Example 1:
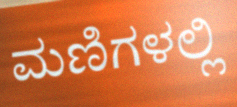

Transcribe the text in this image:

ಮಣಿಗಳಲ್ಲಿ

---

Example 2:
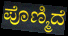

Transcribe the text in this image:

ಪೊಣ್ಮಿದೆ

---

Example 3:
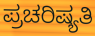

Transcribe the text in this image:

ಪ್ರಚರಿಷ್ಯತಿ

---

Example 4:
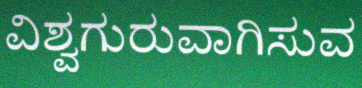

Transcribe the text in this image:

ವಿಶ್ವಗುರುವಾಗಿಸುವ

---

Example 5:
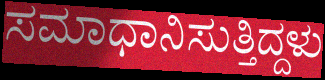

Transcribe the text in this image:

ಸಮಾಧಾನಿಸುತ್ತಿದ್ದಳು